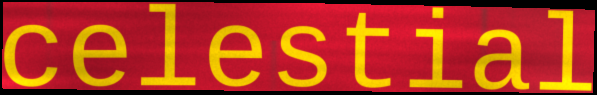
celestial